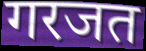
गरजत